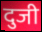
दुजी